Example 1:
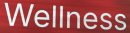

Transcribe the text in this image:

Wellness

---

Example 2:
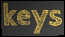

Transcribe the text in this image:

keys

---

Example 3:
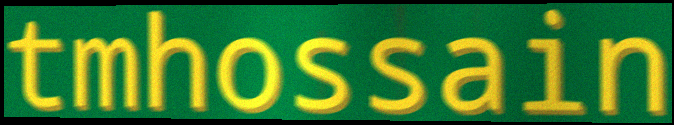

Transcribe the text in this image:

tmhossain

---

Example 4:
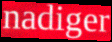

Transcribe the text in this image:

nadiger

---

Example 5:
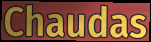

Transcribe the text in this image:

Chaudas